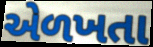
એળખતા